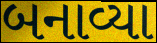
બનાવ્યા